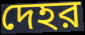
দেহর